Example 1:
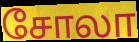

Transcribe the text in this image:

சோலா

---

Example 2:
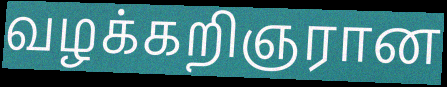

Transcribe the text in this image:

வழக்கறிஞரான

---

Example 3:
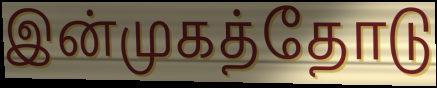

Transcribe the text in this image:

இன்முகத்தோடு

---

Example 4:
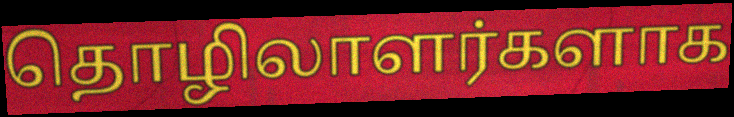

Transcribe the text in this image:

தொழிலாளர்களாக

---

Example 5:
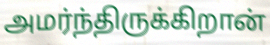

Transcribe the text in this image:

அமர்ந்திருக்கிறான்